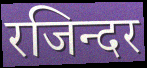
रजिन्दर